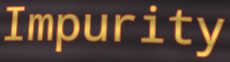
Impurity